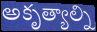
అకృత్యాల్ని